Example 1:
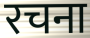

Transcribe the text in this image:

रचना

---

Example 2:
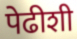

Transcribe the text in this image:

पेढीशी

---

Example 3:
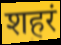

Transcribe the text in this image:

शहरं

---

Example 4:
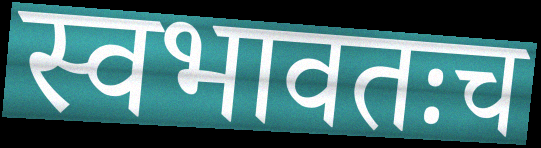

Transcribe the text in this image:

स्वभावतःच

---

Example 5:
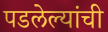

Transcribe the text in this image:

पडलेल्यांची